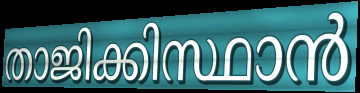
താജിക്കിസ്ഥാൻ